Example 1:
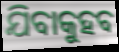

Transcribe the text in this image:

ଯିବାକୁହବ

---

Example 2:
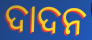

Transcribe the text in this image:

ଦାଦନ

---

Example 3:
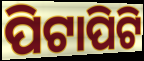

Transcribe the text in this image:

ପିଟାପିଟି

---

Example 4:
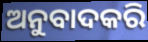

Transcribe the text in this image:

ଅନୁବାଦକରି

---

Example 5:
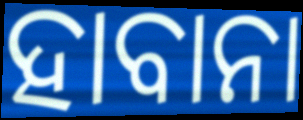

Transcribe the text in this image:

ହାବାନା